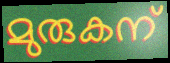
മുരുകന്